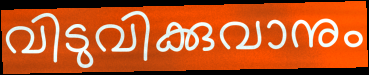
വിടുവിക്കുവാനും